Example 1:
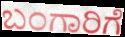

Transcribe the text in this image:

ಬಂಗಾರಿಗೆ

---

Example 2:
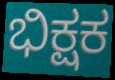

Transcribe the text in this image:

ಭಿಕ್ಷಕ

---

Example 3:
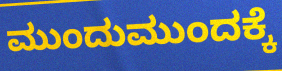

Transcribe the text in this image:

ಮುಂದುಮುಂದಕ್ಕೆ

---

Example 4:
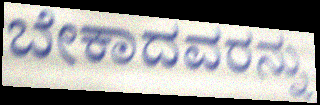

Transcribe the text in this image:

ಬೇಕಾದವರನ್ನು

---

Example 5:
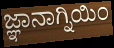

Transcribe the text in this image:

ಜ್ಞಾನಾಗ್ನಿಯಿಂ